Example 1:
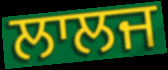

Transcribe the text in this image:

ਲਾਲਜ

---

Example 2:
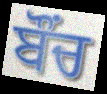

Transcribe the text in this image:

ਬੌਂਚ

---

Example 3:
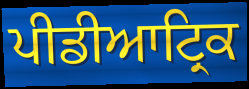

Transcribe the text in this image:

ਪੀਡੀਆਟ੍ਰਿਕ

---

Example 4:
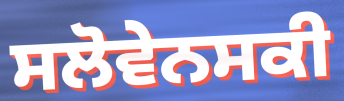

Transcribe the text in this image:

ਸਲੋਵੇਨਸਕੀ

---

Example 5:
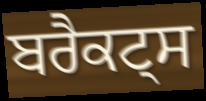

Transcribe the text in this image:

ਬਰੈਕਟ੍ਸ